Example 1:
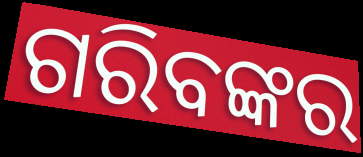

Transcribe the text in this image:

ଗରିବଙ୍କର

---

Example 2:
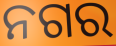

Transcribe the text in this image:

ନଗର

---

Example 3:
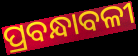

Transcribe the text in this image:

ପ୍ରବନ୍ଧାବଳୀ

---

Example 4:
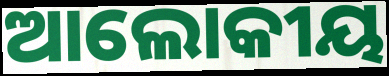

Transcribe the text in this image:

ଆଲୋକୀୟ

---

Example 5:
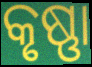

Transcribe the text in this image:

କୃଷ୍ଣା